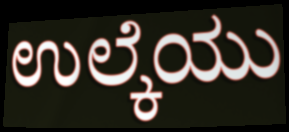
ಉಲ್ಕೆಯು